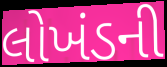
લોખંડની